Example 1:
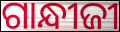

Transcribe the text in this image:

ଗାନ୍ଧୀଜୀ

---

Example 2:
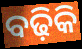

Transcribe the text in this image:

ବଢ଼ିକି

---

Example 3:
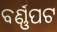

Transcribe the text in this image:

ବର୍ଣ୍ଣପଟ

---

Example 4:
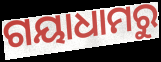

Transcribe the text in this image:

ଗୟାଧାମରୁ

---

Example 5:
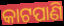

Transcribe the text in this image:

କାଟପାଣି